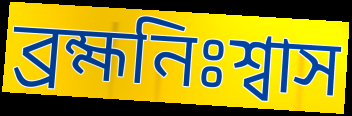
ব্রহ্মনিঃশ্বাস